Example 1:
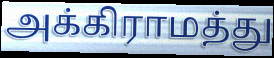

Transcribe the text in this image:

அக்கிராமத்து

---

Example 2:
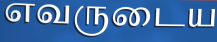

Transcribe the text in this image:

எவருடைய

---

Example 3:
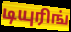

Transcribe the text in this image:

டியுரிங்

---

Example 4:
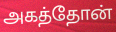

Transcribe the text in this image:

அகத்தோன்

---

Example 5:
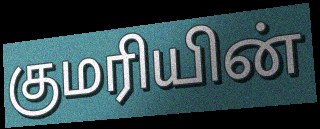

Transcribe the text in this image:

குமரியின்